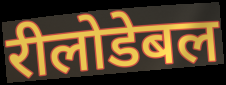
रीलोडेबल